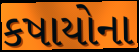
કષાયોના